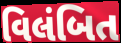
વિલંબિત